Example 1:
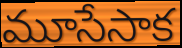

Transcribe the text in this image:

మూసేసాక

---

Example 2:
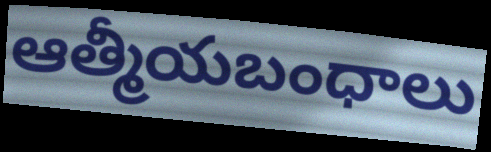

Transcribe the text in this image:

ఆత్మీయబంధాలు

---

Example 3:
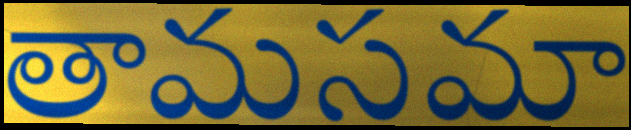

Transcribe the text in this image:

తామసమా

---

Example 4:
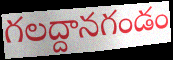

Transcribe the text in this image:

గలద్దానగండం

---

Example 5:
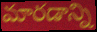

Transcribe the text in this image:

మారడాన్ని